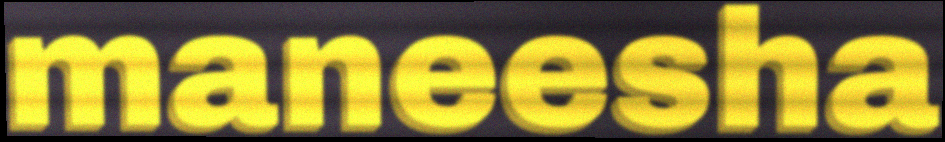
maneesha